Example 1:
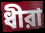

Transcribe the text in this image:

ধীরা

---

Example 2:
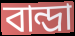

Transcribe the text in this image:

বান্দ্রা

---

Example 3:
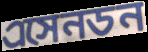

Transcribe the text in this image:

এসেনডন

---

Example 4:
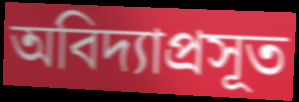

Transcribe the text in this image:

অবিদ্যাপ্রসূত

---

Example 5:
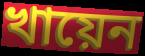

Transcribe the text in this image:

খায়েন